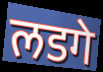
लडगे